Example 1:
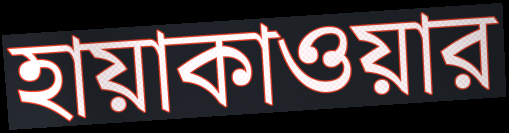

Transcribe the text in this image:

হায়াকাওয়ার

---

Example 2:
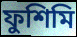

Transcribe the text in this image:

ফুশিমি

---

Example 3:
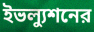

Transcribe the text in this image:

ইভল্যুশনের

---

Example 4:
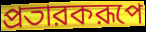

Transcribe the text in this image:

প্রতারকরূপে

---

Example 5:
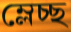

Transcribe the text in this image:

ম্লেচ্ছ